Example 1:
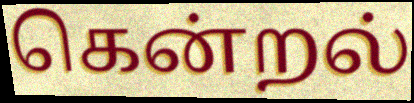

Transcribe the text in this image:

கென்றல்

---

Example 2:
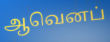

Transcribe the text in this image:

ஆவெனப்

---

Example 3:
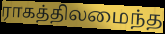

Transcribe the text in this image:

ராகத்திலமைந்த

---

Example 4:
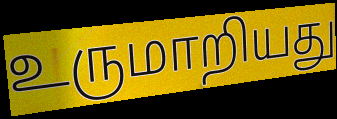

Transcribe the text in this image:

உருமாறியது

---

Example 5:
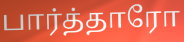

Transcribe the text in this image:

பார்த்தாரோ